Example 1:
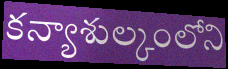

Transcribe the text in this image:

కన్యాశుల్కంలోని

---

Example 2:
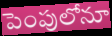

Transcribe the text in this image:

పెంపులోనూ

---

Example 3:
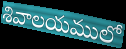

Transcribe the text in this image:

శివాలయములో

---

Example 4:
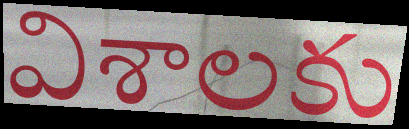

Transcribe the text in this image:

విశాలకు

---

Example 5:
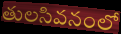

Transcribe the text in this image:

తులసివనంలో